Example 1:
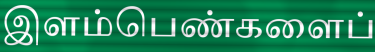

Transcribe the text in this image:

இளம்பெண்களைப்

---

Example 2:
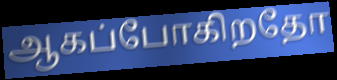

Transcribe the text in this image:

ஆகப்போகிறதோ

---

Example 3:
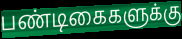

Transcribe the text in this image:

பண்டிகைகளுக்கு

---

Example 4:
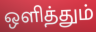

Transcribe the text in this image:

ஒளித்தும்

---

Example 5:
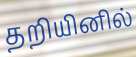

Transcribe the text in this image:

தறியினில்